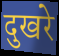
दुखरे